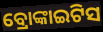
ବ୍ରୋଙ୍କାଇଟିସ